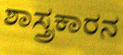
ಶಾಸ್ತ್ರಕಾರನ